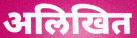
अलिखित